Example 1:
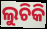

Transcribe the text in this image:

ଲୁଚିକି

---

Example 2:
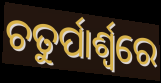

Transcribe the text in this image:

ଚତୁର୍ପାର୍ଶ୍ୱରେ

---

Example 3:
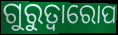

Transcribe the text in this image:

ଗୁରୁତ୍ବାରୋପ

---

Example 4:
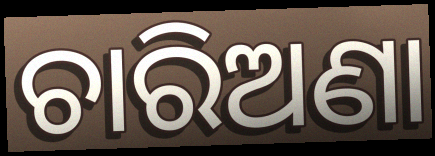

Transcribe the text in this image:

ଚାରିଅଣା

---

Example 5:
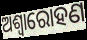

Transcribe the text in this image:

ଅଶ୍ୱାରୋହଣ